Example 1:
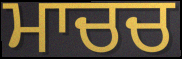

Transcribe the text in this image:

ਮਾਚਚ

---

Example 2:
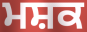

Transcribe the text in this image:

ਮਸ਼ਕ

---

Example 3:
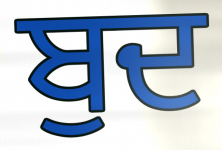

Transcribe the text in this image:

ਬੁਦ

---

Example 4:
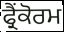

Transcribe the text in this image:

ਫ੍ਰੈਂਕੋਰਮ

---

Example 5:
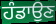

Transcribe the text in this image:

ਹੰਡਾਉਣ